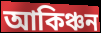
আকিঞ্চন